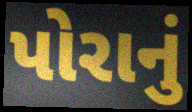
પોરાનું